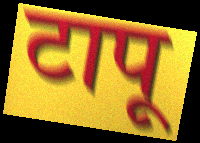
टापू